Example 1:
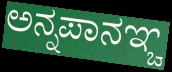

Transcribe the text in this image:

ಅನ್ನಪಾನಞ್ಚ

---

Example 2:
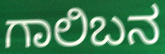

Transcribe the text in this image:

ಗಾಲಿಬನ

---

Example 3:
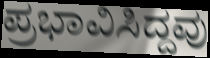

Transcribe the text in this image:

ಪ್ರಭಾವಿಸಿದ್ದವು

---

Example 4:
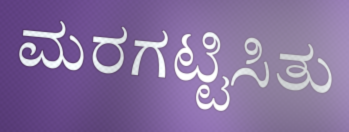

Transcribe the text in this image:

ಮರಗಟ್ಟಿಸಿತು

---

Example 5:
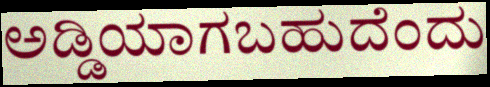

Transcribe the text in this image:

ಅಡ್ಡಿಯಾಗಬಹುದೆಂದು